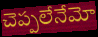
చెప్పలేనేమో